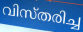
വിസ്തരിച്ച